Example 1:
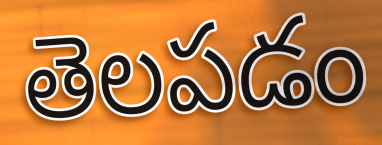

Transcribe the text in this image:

తెలపడం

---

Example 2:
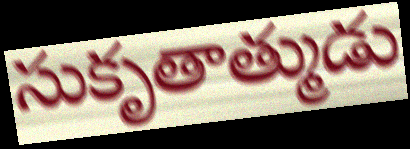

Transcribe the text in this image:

సుకృతాత్ముడు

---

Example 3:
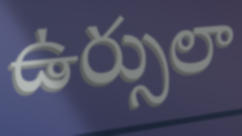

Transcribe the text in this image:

ఉర్సులా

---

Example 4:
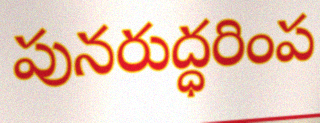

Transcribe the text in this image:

పునరుద్ధరింప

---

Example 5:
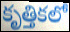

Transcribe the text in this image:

కృత్తికలో